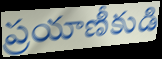
ప్రయాణీకుడి